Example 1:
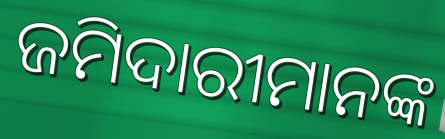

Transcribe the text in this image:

ଜମିଦାରୀମାନଙ୍କ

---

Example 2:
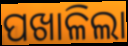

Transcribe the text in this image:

ପଖାଳିଲା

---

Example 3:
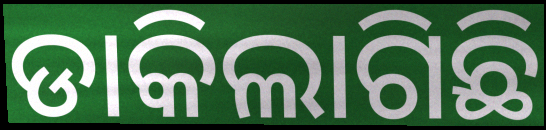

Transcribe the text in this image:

ଡାକିଲାଗିଛି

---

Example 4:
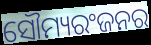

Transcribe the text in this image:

ସୌମ୍ୟରଂଜନର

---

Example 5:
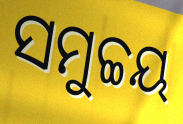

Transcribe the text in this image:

ସମୁଚ୍ଚୟ